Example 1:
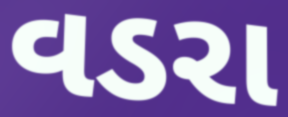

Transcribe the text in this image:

વડરા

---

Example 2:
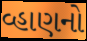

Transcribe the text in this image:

વ્હાણનો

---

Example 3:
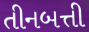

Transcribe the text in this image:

તીનબત્તી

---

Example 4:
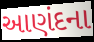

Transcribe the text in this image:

આણંદના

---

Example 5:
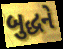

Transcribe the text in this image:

બુદ્ધને